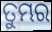
ତୁମ୍ଭର